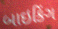
બાઇકિંગ